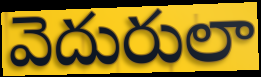
వెదురులా